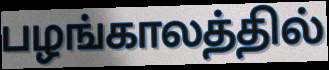
பழங்காலத்தில்